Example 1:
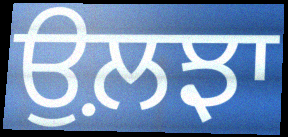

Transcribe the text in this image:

ਉਲ਼ਝਾ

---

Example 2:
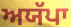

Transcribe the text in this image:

ਅਯੱਪਾ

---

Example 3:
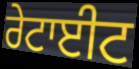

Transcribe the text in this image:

ਰੇਟਾਈਟ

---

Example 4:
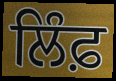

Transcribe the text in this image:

ਲਿੰਫ਼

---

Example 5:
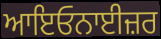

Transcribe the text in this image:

ਆਇਓਨਾਈਜ਼ਰ